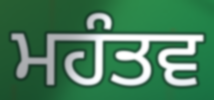
ਮਹੰਤਵ